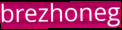
brezhoneg